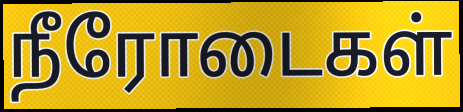
நீரோடைகள்